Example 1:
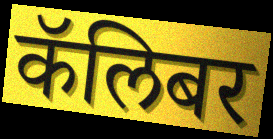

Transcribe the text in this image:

कॅलिबर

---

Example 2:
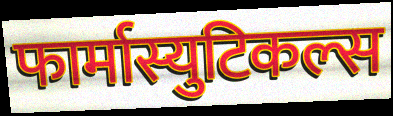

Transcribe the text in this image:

फार्मास्युटिकल्स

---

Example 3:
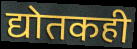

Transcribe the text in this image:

द्योतकही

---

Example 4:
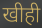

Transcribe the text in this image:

खीही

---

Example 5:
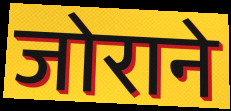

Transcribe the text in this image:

जोराने